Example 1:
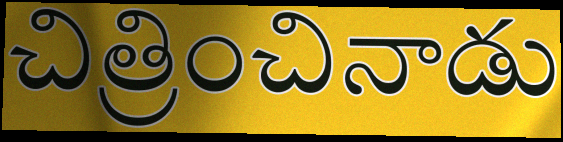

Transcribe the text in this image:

చిత్రించినాడు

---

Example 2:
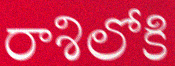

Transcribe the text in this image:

రాశిలోకి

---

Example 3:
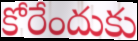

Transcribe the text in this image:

కోరేందుకు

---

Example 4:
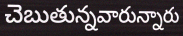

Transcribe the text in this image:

చెబుతున్నవారున్నారు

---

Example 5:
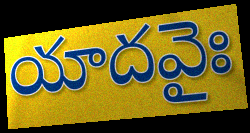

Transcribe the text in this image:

యాదవైః